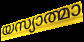
യസ്യാത്മാ